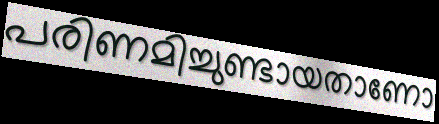
പരിണമിച്ചുണ്ടായതാണോ